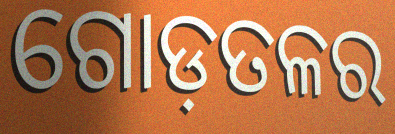
ଗୋଡ଼ତଳର